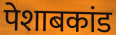
पेशाबकांड